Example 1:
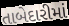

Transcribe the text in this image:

તાબેદારીમાં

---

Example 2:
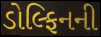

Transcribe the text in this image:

ડોલ્ફિનની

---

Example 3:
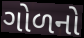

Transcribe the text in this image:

ગોળનો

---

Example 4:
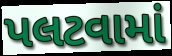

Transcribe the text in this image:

પલટવામાં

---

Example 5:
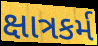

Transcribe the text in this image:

ક્ષાત્રકર્મ